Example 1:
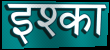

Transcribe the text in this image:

इश्का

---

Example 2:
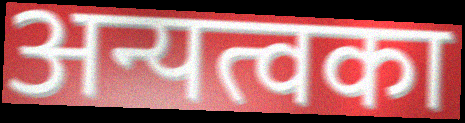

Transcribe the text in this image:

अन्यत्वका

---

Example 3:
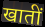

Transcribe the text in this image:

खातीं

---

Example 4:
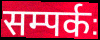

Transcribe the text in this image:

सम्पर्कः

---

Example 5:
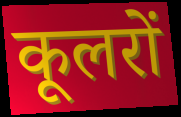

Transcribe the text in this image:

कूलरों